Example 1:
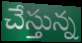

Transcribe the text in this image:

చేస్తున్న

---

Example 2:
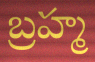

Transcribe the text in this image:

బ్రహ్మ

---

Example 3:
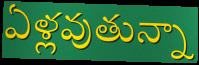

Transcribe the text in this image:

ఏళ్లవుతున్నా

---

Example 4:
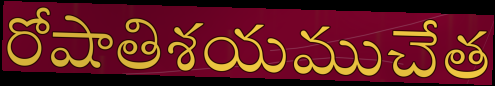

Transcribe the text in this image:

రోషాతిశయముచేత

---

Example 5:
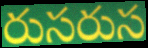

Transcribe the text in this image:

రుసరుస